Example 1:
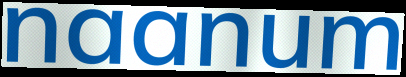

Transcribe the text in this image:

naanum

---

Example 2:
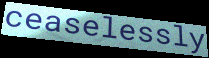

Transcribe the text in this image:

ceaselessly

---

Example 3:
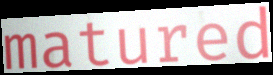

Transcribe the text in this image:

matured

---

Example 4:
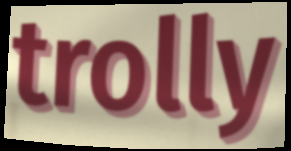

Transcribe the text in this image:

trolly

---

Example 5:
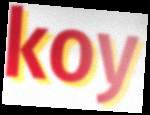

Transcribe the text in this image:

koy